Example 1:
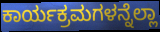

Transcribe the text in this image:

ಕಾರ್ಯಕ್ರಮಗಳನ್ನೆಲ್ಲಾ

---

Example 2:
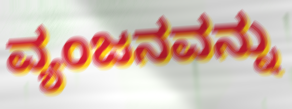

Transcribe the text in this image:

ವ್ಯಂಜನವನ್ನು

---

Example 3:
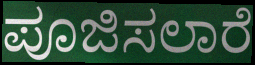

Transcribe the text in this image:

ಪೂಜಿಸಲಾರೆ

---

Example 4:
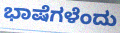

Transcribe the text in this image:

ಭಾಷೆಗಳೆಂದು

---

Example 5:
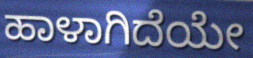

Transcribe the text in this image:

ಹಾಳಾಗಿದೆಯೇ